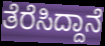
ತೆರೆಸಿದ್ದಾನೆ